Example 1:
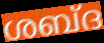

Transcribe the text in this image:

ശബ്‌ദ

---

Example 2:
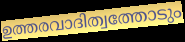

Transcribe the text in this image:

ഉത്തരവാദിത്വത്തോടും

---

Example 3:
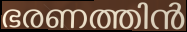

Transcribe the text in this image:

ഭരണത്തിൻ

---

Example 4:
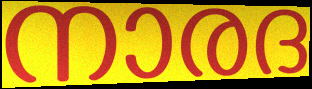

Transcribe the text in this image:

നാരദ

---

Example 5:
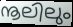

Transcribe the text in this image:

നൂലിലും